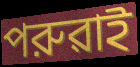
পৰুৱাই